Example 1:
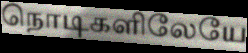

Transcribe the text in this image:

நொடிகளிலேயே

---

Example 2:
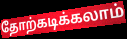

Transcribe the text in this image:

தோற்கடிக்கலாம்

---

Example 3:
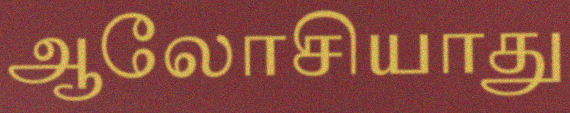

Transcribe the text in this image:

ஆலோசியாது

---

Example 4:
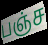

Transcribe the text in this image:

பஞ்ச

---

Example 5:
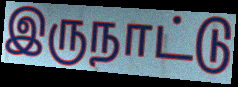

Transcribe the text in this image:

இருநாட்டு